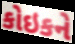
કોઇકને